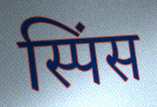
स्पिंस